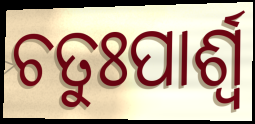
ଚତୁଃପାର୍ଶ୍ବ